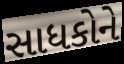
સાધકોને